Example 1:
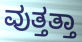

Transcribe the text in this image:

ವುತ್ತತ್ತಾ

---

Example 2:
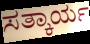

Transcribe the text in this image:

ಸತ್ಕಾರ್ಯ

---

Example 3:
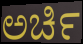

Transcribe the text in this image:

ಅರ್ಚಿ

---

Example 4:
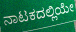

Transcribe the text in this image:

ನಾಟಕದಲ್ಲಿಯೇ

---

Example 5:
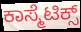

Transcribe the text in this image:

ಕಾಸ್ಮೆಟಿಕ್ಸ್